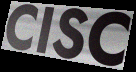
CISC